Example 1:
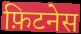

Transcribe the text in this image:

फ़िटनेस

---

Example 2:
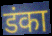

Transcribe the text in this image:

डंका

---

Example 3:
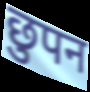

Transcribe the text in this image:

छुपन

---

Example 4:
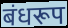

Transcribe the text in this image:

बंधरूप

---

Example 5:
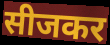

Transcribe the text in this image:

सीजकर